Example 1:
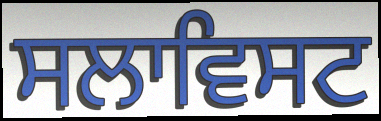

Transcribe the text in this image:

ਸਲਾਵਿਸਟ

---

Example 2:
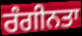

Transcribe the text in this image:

ਰੰਗੀਨਤਾ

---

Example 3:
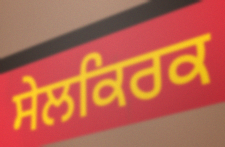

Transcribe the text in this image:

ਸੇਲਕਿਰਕ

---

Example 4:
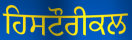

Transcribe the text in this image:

ਹਿਸਟੌਰੀਕਲ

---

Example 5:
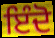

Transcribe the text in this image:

ਇੰਦੋ